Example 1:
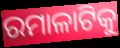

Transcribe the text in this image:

ରମାଳାଟିକୁ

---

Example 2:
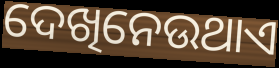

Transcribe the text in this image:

ଦେଖିନେଉଥାଏ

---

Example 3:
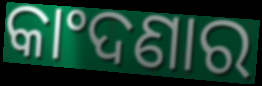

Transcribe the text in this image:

କାଂଦଣାର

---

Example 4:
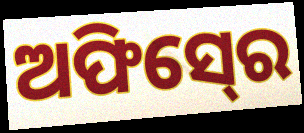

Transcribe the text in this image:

ଅଫିସ୍‍ରେ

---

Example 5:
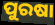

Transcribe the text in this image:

ପୁରଷା